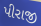
પીરાજી